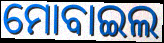
ମୋବାଇଲ